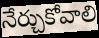
నేర్చుకోవాలి